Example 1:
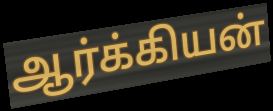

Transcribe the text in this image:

ஆர்க்கியன்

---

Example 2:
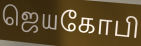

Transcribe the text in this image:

ஜெயகோபி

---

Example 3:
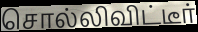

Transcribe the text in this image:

சொல்லிவிட்டீர்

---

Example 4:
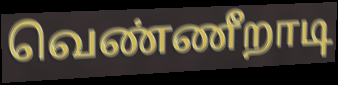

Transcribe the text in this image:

வெண்ணீறாடி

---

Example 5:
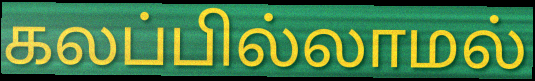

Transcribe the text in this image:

கலப்பில்லாமல்